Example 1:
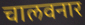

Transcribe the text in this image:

चालवनार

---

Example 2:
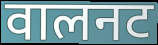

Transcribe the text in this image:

वालनट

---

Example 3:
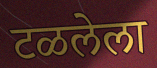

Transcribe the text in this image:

टळलेला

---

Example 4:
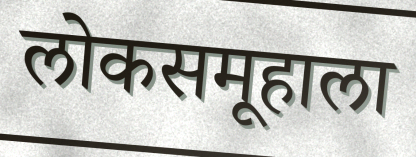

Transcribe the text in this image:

लोकसमूहाला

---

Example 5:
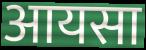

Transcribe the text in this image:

आयसा